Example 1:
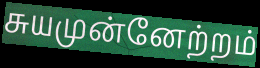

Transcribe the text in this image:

சுயமுன்னேற்றம்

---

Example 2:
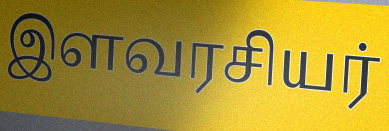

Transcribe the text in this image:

இளவரசியர்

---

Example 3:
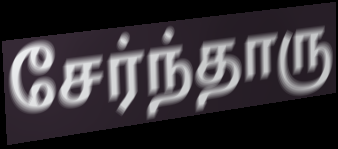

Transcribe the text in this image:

சேர்ந்தாரு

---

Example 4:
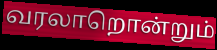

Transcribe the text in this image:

வரலாறொன்றும்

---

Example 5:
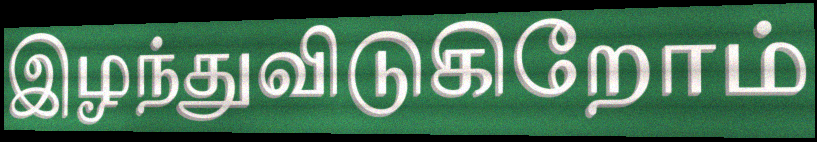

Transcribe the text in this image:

இழந்துவிடுகிறோம்